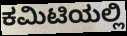
ಕಮಿಟಿಯಲ್ಲಿ